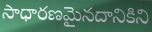
సాధారణమైనదానికిని